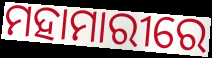
ମହାମାରୀରେ